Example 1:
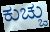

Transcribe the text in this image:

ಕುಚ್ಚು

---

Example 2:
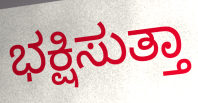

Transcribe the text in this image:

ಭಕ್ಷಿಸುತ್ತಾ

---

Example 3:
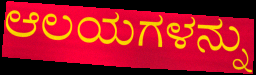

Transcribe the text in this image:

ಆಲಯಗಳನ್ನು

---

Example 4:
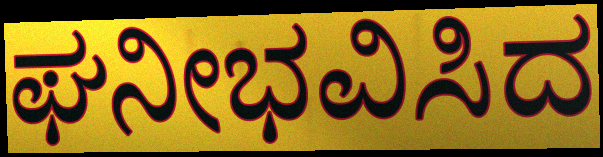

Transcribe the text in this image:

ಘನೀಭವಿಸಿದ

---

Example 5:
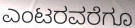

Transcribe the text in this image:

ಎಂಟರವರೆಗೂ